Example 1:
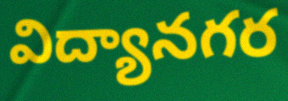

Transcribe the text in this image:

విద్యానగర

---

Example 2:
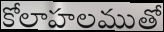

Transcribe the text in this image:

కోలాహలముతో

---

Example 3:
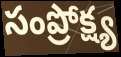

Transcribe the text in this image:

సంప్రోక్ష్య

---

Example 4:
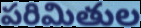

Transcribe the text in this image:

పరిమితుల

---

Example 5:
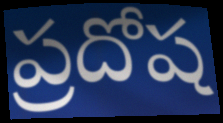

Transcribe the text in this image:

ప్రదోష